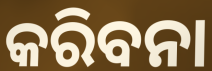
କରିବନା